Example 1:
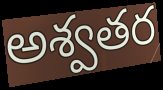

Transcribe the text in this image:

అశ్వతర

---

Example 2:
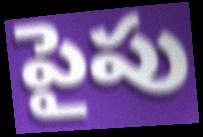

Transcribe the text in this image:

పైపు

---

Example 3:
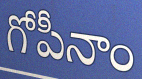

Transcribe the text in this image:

గోపీనాం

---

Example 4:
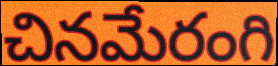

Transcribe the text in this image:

చినమేరంగి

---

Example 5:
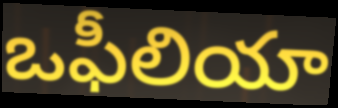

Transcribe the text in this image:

ఒఫీలియా